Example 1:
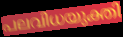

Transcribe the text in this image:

പലവിധയുക്തി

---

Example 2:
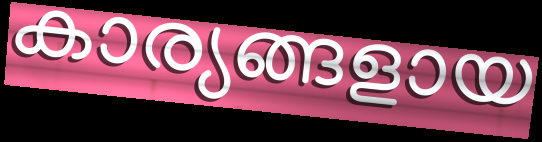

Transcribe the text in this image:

കാര്യങ്ങളായ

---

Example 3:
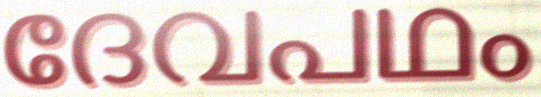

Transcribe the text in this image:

ദേവപഥം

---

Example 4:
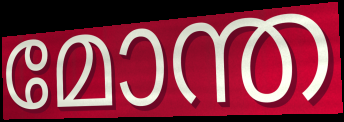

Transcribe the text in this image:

മോന്ത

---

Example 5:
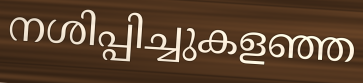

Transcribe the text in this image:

നശിപ്പിച്ചുകളഞ്ഞ